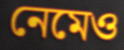
নেমেও